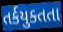
તર્કયુક્તતા